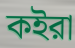
কইরা